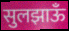
सुलझाऊँ